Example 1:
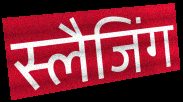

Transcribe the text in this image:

स्लैजिंग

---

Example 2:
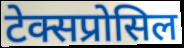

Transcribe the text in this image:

टेक्सप्रोसिल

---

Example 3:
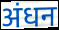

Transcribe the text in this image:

अंधन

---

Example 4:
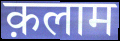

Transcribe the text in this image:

क़लाम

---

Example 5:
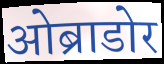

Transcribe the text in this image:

ओब्राडोर